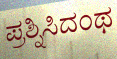
ಪ್ರಶ್ನಿಸಿದಂಥ